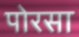
पोरसा